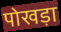
पोखड़ा